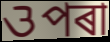
ওপৰা